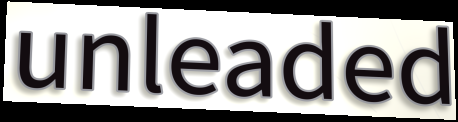
unleaded